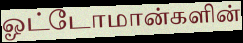
ஓட்டோமான்களின்